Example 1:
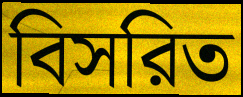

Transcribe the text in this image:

বিসরিত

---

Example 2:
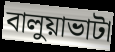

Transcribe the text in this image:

বালুয়াভাটা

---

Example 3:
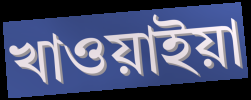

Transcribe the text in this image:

খাওয়াইয়া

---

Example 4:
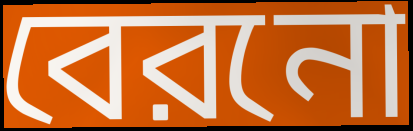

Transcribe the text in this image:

বেরনো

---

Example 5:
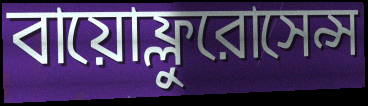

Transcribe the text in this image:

বায়োফ্লুরোসেন্স